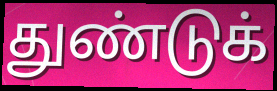
துண்டுக்